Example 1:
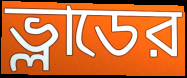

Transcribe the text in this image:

ভ্লাডের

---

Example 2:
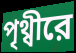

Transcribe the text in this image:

পৃথ্বীরে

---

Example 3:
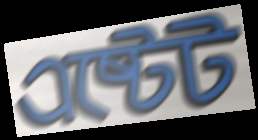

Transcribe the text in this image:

এষ্টেট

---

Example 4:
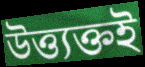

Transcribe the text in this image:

উত্ত্যক্তই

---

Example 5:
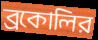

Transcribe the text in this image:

ব্রকোলির